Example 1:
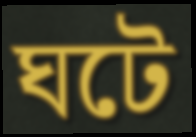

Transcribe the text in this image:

ঘটে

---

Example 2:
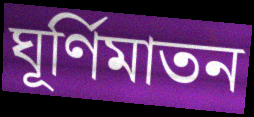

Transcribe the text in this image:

ঘূর্ণিমাতন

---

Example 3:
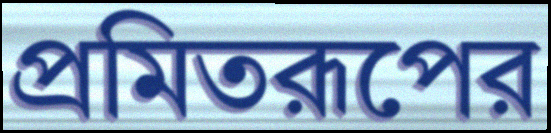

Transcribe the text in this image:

প্রমিতরূপের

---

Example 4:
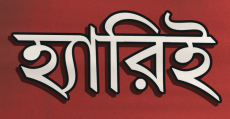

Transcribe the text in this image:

হ্যারিই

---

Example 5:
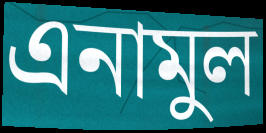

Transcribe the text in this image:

এনামুল